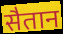
सैतान